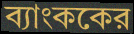
ব্যাংককের